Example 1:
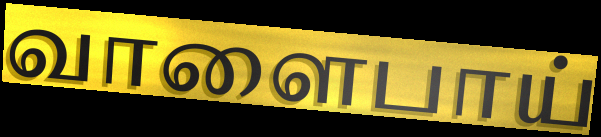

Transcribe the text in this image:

வாளைபாய்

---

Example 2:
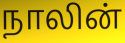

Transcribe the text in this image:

நாலின்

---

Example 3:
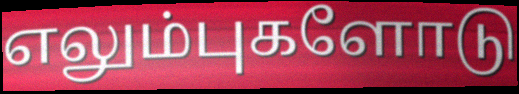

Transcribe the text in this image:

எலும்புகளோடு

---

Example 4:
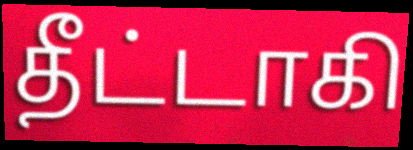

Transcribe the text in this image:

தீட்டாகி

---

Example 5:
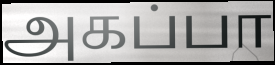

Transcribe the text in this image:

அகப்பா